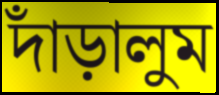
দাঁড়ালুম